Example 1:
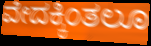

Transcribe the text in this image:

ವೇದಕ್ಕಿಂತಲೂ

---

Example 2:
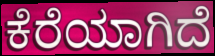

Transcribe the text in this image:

ಕೆರೆಯಾಗಿದೆ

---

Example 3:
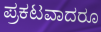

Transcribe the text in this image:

ಪ್ರಕಟವಾದರೂ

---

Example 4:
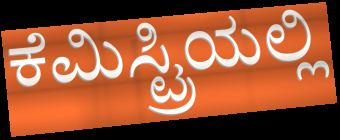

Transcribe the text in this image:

ಕೆಮಿಸ್ಟ್ರಿಯಲ್ಲಿ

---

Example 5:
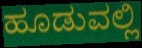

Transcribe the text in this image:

ಹೂಡುವಲ್ಲಿ